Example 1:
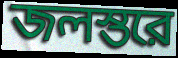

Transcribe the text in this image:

জলস্তরে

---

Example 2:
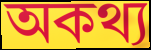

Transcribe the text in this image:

অকথ্য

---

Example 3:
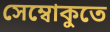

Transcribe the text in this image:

সেম্বোকুতে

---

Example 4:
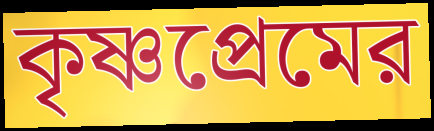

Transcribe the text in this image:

কৃষ্ণপ্রেমের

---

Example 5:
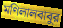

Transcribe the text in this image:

মণিলালবাবুর